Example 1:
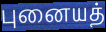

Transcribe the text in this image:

புனையத்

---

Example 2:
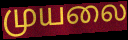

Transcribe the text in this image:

முயலை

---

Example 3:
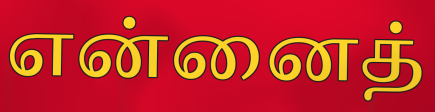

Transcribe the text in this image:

என்னைத்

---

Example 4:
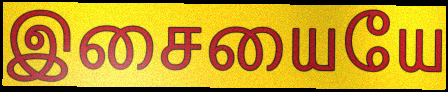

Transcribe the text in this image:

இசையையே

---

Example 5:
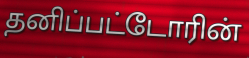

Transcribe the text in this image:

தனிப்பட்டோரின்